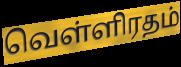
வெள்ளிரதம்